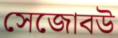
সেজোবউ